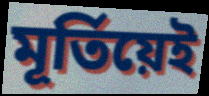
মূৰ্তিয়েই